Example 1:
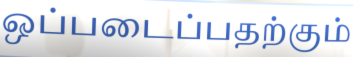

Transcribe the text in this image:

ஒப்படைப்பதற்கும்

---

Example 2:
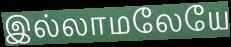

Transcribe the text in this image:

இல்லாமலேயே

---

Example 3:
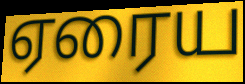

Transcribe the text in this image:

ஏரைய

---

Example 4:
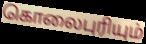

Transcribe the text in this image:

கொலைபுரியும்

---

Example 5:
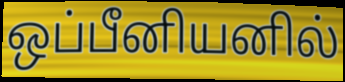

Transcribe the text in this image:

ஒப்பீனியனில்